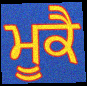
ਮੂਕੈ